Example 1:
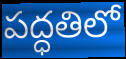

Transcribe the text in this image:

పద్ధతిలో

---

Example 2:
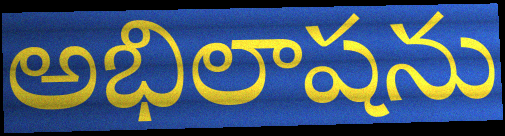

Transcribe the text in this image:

అభిలాషను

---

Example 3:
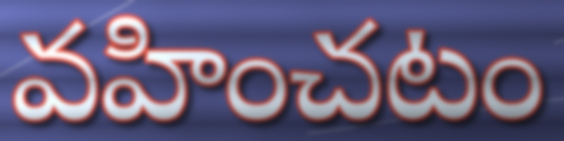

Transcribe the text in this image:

వహించటం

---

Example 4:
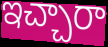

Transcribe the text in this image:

ఇచ్చారా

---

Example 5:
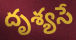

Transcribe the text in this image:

దృశ్యసే